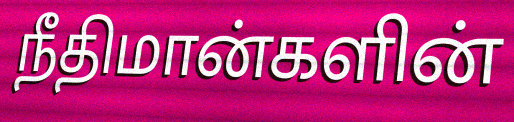
நீதிமான்களின்